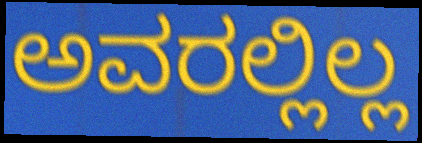
ಅವರಲ್ಲಿಲ್ಲ